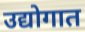
उद्योगात